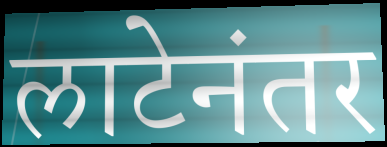
लाटेनंतर